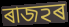
ৰাজহৰ